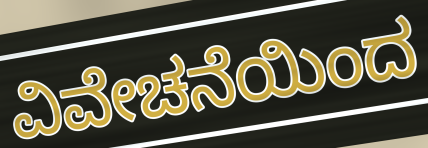
ವಿವೇಚನೆಯಿಂದ